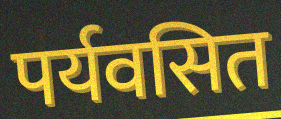
पर्यवसित